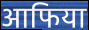
आफिया